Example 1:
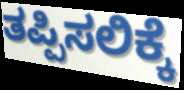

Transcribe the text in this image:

ತಪ್ಪಿಸಲಿಕ್ಕೆ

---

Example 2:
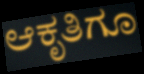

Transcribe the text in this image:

ಆಕೃತಿಗೂ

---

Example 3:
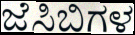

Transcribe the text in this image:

ಜೆಸಿಬಿಗಳ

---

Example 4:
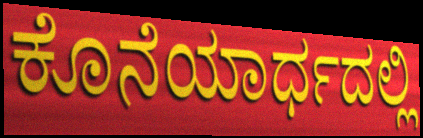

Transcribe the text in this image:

ಕೊನೆಯಾರ್ಧದಲ್ಲಿ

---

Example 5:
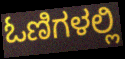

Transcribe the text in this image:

ಓಣಿಗಳಲ್ಲಿ